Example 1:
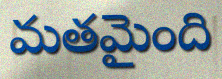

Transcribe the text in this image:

మతమైంది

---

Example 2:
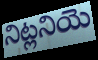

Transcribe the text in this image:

నిట్లనియె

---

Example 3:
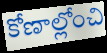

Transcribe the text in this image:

కోణాల్లోంచి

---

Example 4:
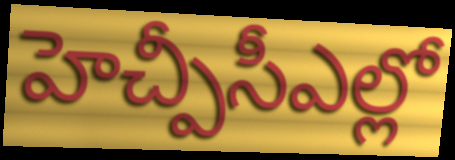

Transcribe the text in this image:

హెచ్పీసీఎల్లో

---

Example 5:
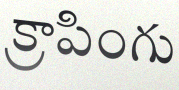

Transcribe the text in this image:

క్రాపింగు